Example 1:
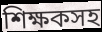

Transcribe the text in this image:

শিক্ষকসহ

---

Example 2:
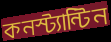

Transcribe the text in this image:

কনস্ট্যান্টিন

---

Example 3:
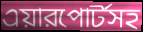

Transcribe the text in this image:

এয়ারপোর্টসহ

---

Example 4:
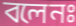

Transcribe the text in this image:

বলেনঃ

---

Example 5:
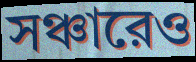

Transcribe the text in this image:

সঞ্চারেও